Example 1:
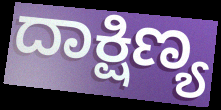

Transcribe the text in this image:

ದಾಕ್ಷಿಣ್ಯ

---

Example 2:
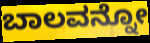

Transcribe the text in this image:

ಬಾಲವನ್ನೋ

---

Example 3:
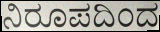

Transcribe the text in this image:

ನಿರೂಪದಿಂದ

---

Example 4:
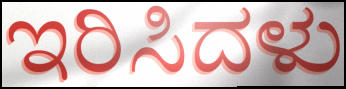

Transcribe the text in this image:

ಇರಿಸಿದಳು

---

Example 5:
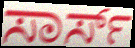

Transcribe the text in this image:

ಸಾರ್ಸ್